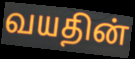
வயதின்